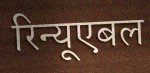
रिन्यूएबल